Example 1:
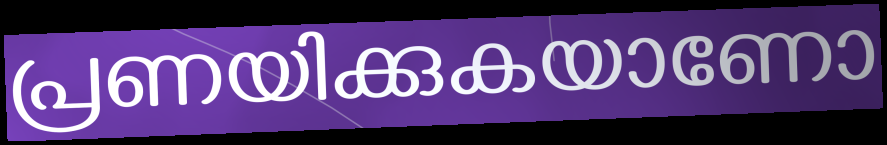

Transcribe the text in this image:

പ്രണയിക്കുകയാണോ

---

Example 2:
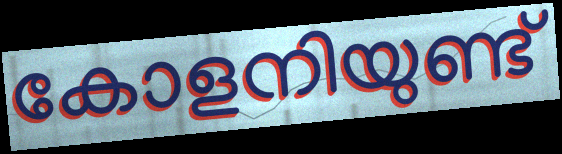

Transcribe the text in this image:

കോളനിയുണ്ട്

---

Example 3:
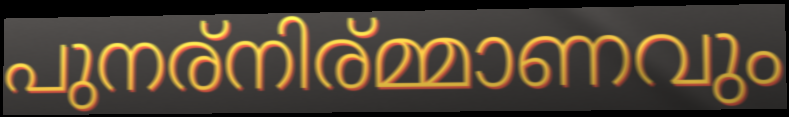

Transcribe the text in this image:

പുനര്നിര്മ്മാണവും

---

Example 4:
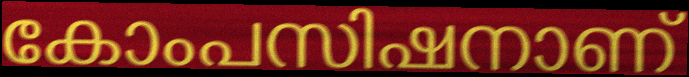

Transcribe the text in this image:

കോംപസിഷനാണ്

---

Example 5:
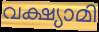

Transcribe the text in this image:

വക്ഷ്യാമി